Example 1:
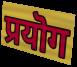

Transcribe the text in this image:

प्रयॊग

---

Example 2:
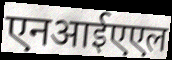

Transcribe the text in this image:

एनआईएएल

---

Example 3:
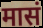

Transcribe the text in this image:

मासं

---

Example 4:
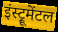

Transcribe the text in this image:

इंस्ट्रूमेंटल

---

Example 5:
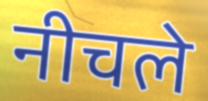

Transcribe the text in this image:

नीचले